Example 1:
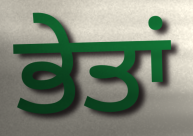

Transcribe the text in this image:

ਭੇਤਾਂ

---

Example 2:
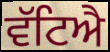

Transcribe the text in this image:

ਵੱਟਿਐ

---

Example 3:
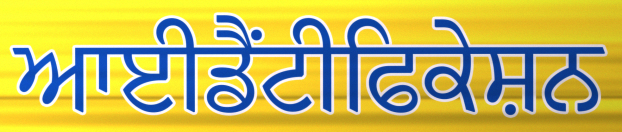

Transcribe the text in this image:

ਆਈਡੈਂਟੀਫਿਕੇਸ਼ਨ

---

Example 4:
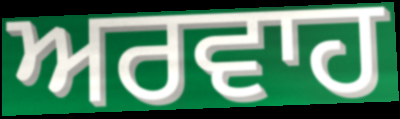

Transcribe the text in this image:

ਅਰਵਾਹ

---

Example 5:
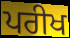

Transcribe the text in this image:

ਪਰੀਖ